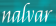
nalvar